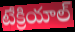
టేక్రియాల్